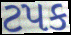
ટપક